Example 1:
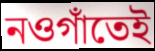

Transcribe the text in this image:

নওগাঁতেই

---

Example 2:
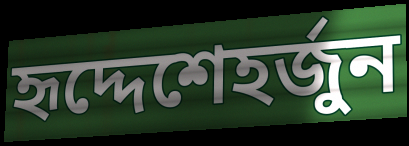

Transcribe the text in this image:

হৃদ্দেশেহর্জুন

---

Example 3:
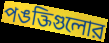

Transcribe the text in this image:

পঙক্তিগুলোর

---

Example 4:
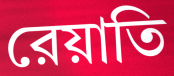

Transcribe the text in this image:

রেয়াতি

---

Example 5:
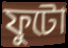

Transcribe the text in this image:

ফুটো